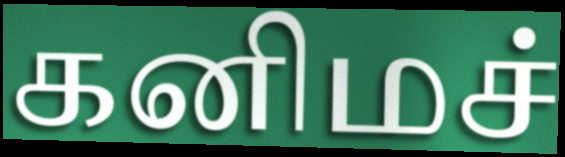
கனிமச்